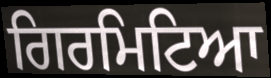
ਗਿਰਮਿਟਿਆ